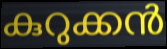
കുറുക്കൻ